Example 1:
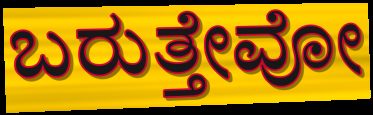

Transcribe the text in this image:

ಬರುತ್ತೇವೋ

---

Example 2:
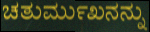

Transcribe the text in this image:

ಚತುರ್ಮುಖನನ್ನು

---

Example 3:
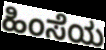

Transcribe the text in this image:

ಹಿಂಸೆಯ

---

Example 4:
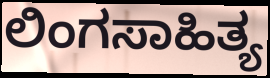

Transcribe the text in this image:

ಲಿಂಗಸಾಹಿತ್ಯ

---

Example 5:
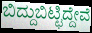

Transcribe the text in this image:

ಬಿದ್ದುಬಿಟ್ಟಿದ್ದೇವೆ